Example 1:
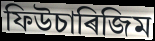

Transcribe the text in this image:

ফিউচাৰিজিম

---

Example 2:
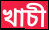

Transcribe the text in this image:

খাচী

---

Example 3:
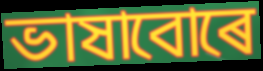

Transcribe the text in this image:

ভাষাবোৰে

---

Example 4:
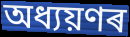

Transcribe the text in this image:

অধ্যয়ণৰ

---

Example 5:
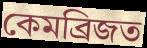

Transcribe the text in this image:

কেমব্ৰিজত